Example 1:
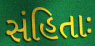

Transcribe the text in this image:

સંહિતાઃ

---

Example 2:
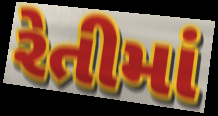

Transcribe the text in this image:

રેતીમાં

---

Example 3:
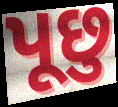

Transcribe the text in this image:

પૂછુ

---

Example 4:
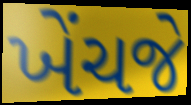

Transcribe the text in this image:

ખેંચજે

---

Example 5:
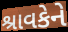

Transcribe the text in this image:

શ્રાવકેને